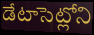
డేటాసెట్లోని